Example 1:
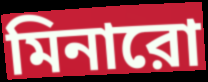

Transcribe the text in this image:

মিনারো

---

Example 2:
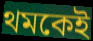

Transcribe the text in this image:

থমকেই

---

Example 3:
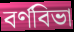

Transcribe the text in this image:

বর্ণবিভা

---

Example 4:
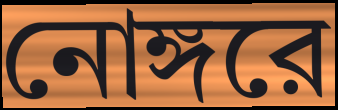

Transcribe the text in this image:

নোঙ্গরে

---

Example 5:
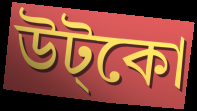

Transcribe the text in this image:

উট্কো